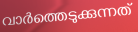
വാർത്തെടുക്കുന്നത്